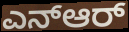
ಎನ್ಆರ್